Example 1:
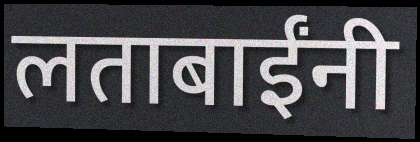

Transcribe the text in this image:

लताबाईंनी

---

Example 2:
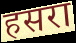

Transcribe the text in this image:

हसरा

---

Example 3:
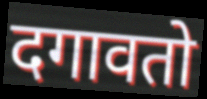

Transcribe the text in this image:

दगावतो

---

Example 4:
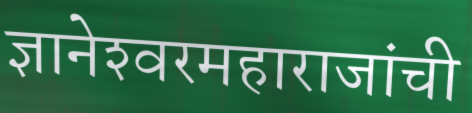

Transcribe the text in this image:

ज्ञानेश्वरमहाराजांची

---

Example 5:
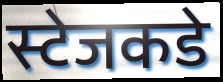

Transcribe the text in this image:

स्टेजकडे